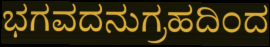
ಭಗವದನುಗ್ರಹದಿಂದ